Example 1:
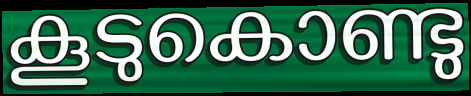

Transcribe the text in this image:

കൂടുകൊണ്ടു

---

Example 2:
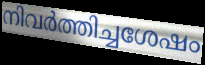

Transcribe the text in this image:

നിവർത്തിച്ചശേഷം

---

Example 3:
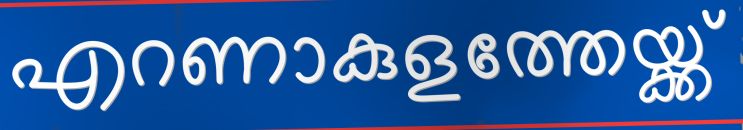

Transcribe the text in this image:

എറണാകുളത്തേയ്ക്ക്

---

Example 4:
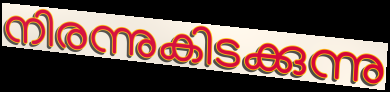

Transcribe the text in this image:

നിരന്നുകിടക്കുന്നു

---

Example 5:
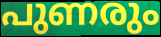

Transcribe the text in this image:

പുണരും